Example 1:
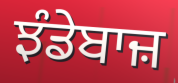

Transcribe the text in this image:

ਝੰਡੇਬਾਜ਼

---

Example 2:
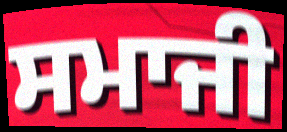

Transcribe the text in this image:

ਸਮਾਜੀ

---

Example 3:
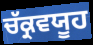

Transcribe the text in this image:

ਚੱਕ੍ਰਵਯੂਹ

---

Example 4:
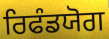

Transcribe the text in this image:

ਰਿਫੰਡਯੋਗ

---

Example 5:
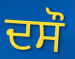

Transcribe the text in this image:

ਦਸੌ